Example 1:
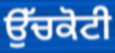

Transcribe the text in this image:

ਉੱਚਕੋਟੀ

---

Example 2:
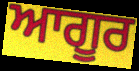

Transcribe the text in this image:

ਆਗੂਰ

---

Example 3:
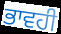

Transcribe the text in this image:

ਭਾਵਹੀ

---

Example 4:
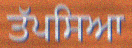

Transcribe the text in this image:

ਤੱਪਸਿਆ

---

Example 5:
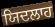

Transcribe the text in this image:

ਯਿਦਲਾਹ